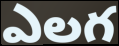
ఎలగ